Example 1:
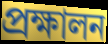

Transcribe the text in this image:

প্রক্ষালন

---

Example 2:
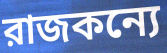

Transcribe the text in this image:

রাজকন্যে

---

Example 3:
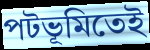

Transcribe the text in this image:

পটভূমিতেই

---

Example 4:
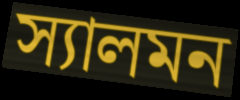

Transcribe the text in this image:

স্যালমন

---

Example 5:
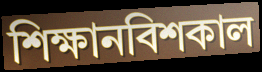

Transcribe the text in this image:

শিক্ষানবিশকাল